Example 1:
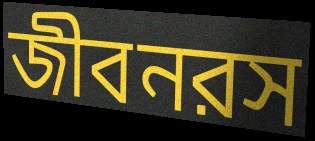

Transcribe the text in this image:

জীবনরস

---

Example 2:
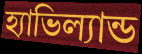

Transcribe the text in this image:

হ্যাভিল্যান্ড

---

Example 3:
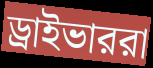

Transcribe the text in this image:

ড্রাইভাররা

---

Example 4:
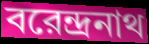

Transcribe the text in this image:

বরেন্দ্রনাথ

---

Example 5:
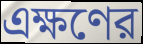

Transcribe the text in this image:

এক্ষণের